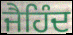
ਜੈਹਿੰਦ